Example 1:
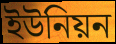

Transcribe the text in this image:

ইউনিয়ন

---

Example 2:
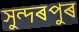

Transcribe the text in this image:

সুন্দৰপুৰ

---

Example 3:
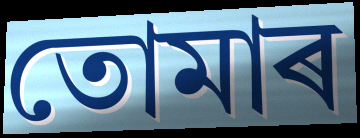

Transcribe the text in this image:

তোমাৰ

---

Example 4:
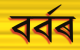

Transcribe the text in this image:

বৰ্বৰ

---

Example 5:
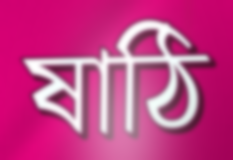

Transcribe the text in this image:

ষাঠি